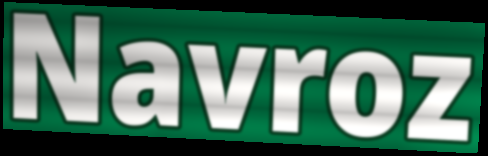
Navroz